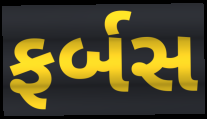
ફર્બસ